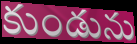
కుండును